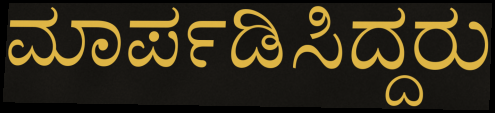
ಮಾರ್ಪಡಿಸಿದ್ದರು